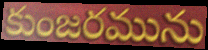
కుంజరమును